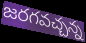
జరగవచ్చన్న